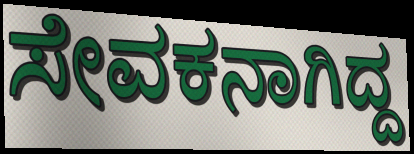
ಸೇವಕನಾಗಿದ್ದ